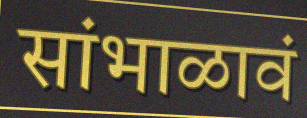
सांभाळावं